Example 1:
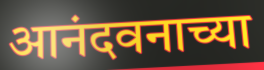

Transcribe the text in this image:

आनंदवनाच्या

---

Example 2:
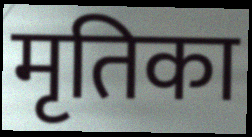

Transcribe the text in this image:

मृतिका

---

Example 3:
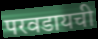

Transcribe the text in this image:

परवडायची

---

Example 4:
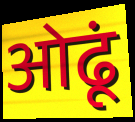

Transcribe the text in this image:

ओढूं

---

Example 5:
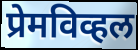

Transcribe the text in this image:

प्रेमविव्हल